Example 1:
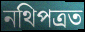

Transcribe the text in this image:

নথিপত্ৰত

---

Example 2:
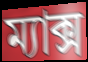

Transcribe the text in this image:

ম্যাক্স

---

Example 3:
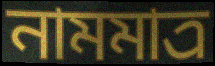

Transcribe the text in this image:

নামমাত্ৰ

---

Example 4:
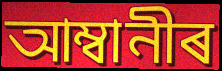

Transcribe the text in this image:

আম্বানীৰ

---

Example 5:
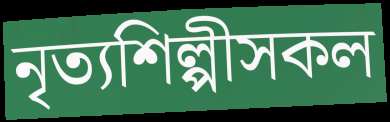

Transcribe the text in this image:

নৃত্যশিল্পীসকল